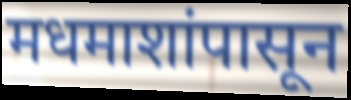
मधमाशांपासून